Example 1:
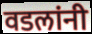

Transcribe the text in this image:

वडलांनी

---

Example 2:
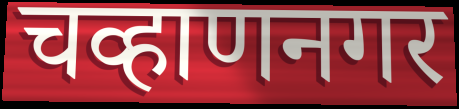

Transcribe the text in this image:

चव्हाणनगर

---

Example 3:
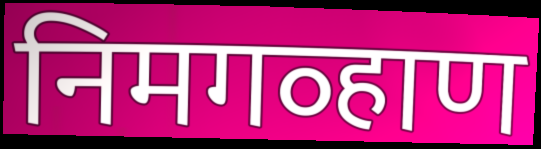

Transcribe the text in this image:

निमगव्हाण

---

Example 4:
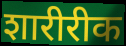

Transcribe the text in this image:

शारीरीक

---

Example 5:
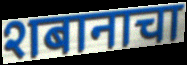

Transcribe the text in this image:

शबानाचा